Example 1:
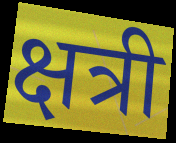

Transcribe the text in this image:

क्षत्री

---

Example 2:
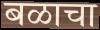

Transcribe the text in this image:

बळाचा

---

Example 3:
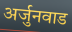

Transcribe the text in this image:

अर्जुनवाड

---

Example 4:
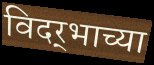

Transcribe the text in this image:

विदर्भाच्या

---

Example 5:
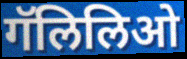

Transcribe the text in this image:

गॅलिलिओ